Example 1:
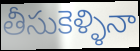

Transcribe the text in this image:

తీసుకెళ్ళినా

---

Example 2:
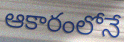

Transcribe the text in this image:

ఆకారంలోనే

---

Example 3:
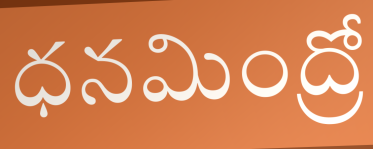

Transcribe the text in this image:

ధనమింద్రో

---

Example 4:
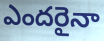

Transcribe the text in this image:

ఎందరైనా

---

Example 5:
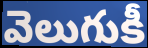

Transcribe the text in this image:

వెలుగుకీ